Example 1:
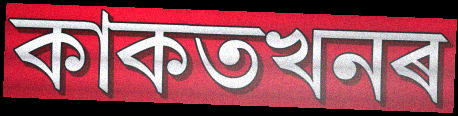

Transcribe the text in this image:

কাকতখনৰ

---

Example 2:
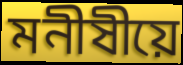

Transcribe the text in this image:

মনীষীয়ে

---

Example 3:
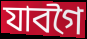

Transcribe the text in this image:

যাবগৈ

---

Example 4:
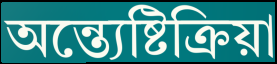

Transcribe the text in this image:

অন্ত্যেষ্টিক্ৰিয়া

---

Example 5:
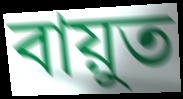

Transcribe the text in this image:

বায়ুত